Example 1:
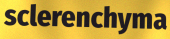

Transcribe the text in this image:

sclerenchyma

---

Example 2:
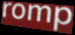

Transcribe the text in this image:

romp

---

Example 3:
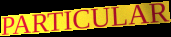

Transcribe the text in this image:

PARTICULAR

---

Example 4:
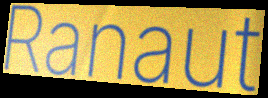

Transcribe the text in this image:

Ranaut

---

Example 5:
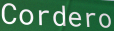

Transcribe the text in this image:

Cordero